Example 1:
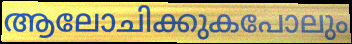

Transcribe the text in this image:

ആലോചിക്കുകപോലും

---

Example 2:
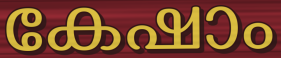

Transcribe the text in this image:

കേഷാം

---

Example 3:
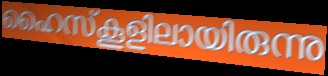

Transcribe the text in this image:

ഹൈസ്‌കൂളിലായിരുന്നു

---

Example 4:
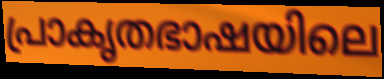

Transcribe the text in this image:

പ്രാകൃതഭാഷയിലെ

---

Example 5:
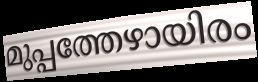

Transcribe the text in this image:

മുപ്പത്തേഴായിരം